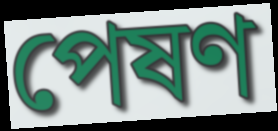
পেষণ